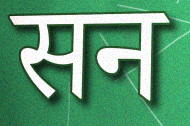
सन